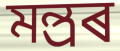
মন্ত্ৰৰ